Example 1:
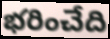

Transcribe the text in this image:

భరించేది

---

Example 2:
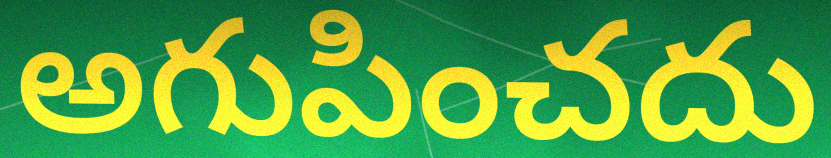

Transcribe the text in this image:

అగుపించదు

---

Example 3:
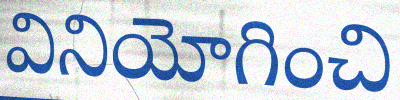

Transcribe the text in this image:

వినియోగించి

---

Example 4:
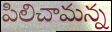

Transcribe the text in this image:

పిలిచామన్న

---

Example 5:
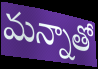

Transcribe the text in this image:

మన్నాతో